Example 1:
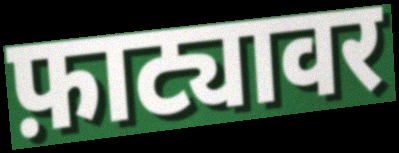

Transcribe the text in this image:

फ़ाट्यावर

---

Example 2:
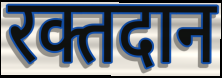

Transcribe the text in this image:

रक्तदान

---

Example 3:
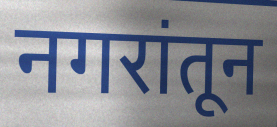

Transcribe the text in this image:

नगरांतून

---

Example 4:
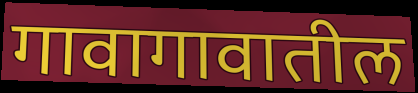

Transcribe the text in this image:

गावागावातील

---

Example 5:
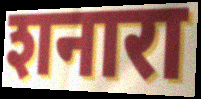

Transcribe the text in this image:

शनारा